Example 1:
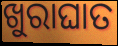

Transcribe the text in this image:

ଖୁରାଘାତ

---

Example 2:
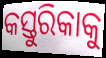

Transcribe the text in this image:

କସ୍ତୁରିକାକୁ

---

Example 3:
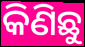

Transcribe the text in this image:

କିଣିଛୁ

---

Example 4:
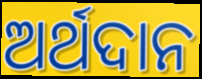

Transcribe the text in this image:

ଅର୍ଥଦାନ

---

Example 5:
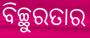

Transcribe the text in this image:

ବିଚ୍ଛୁରତାର